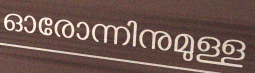
ഓരോന്നിനുമുള്ള